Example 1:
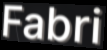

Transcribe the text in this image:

Fabri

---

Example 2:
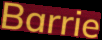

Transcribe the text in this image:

Barrie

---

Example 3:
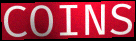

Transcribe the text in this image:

COINS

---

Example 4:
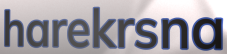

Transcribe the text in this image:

harekrsna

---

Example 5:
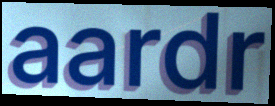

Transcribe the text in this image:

aardr